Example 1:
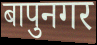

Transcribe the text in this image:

बापुनगर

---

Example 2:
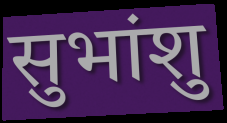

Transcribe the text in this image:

सुभांशु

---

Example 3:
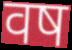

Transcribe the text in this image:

वष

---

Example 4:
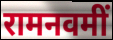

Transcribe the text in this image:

रामनवमीं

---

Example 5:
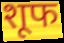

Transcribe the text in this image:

शूफ